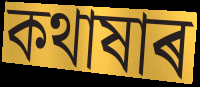
কথাষাৰ